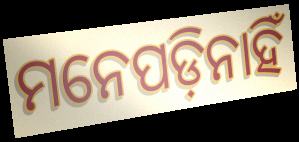
ମନେପଡ଼ିନାହିଁ